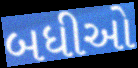
બધીઓ